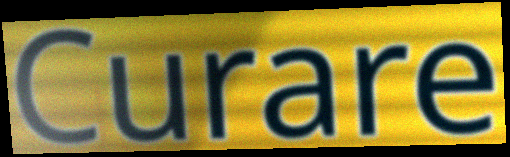
Curare